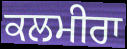
ਕਲਮੀਰਾ